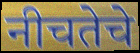
नीचतेचे